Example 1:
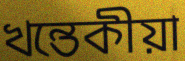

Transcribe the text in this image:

খন্তেকীয়া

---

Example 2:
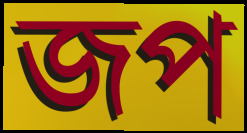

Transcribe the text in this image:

জপ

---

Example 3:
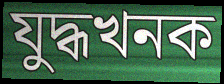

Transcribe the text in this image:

যুদ্ধখনক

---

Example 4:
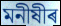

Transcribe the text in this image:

মনীষীৰ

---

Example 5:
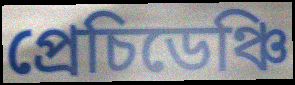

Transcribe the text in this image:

প্ৰেচিডেঞ্চি